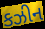
કઝીન